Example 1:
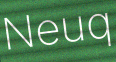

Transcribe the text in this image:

Neuq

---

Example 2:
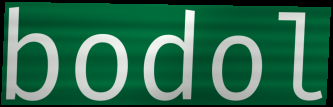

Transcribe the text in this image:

bodol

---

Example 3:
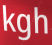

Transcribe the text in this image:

kgh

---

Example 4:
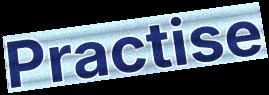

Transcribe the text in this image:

Practise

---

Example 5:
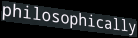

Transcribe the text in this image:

philosophically